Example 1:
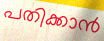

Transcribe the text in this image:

പതിക്കാൻ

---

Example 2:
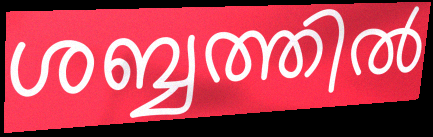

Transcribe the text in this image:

ശബ്ബത്തിൽ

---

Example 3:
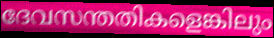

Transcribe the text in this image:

ദേവസന്തതികളെങ്കിലും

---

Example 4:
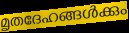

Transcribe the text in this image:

മൃതദേഹങ്ങൾക്കും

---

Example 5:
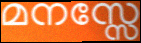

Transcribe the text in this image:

മനസ്സേ